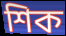
শিক